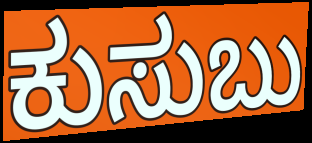
ಕುಸುಬು